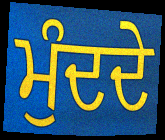
ਮੁੰਦਦੇ